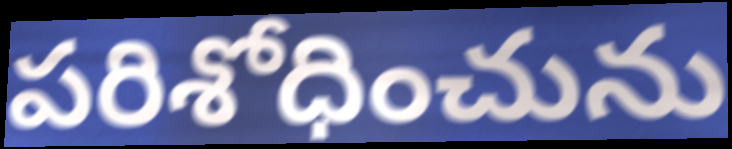
పరిశోధించును